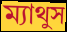
ম্যাথুস